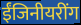
ईंजिनीयरींग